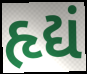
હૃદ્યં